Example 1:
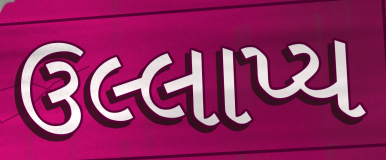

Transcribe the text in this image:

ઉલ્લાપ્ય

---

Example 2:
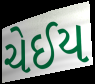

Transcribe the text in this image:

ચેઈય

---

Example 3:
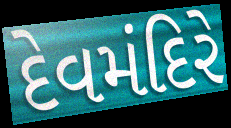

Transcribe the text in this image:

દેવમંદિરે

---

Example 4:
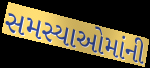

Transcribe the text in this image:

સમસ્યાઓમાંની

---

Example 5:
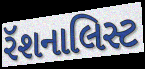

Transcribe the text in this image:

રૅશનાલિસ્ટ